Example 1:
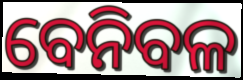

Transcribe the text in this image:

ବେନିବଳ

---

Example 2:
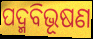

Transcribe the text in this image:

ପଦ୍ମବିଭୂଷଣ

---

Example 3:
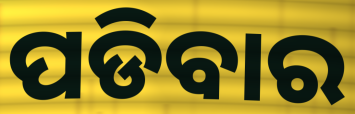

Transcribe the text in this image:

ପଡିବାର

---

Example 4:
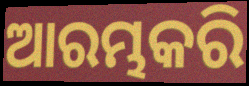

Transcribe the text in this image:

ଆରମ୍ଭକରି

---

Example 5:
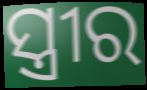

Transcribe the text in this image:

ସ୍ତ୍ରୀର